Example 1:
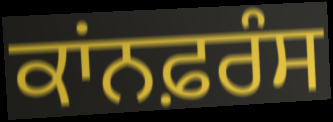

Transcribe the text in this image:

ਕਾਂਨਫ਼ਰੰਸ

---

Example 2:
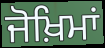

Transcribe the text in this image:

ਜੋਖ਼ਿਮਾਂ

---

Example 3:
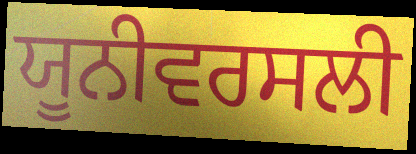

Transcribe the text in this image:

ਯੂਨੀਵਰਸਲੀ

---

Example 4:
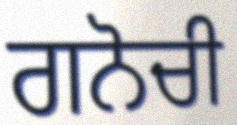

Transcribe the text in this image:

ਗਨੋਚੀ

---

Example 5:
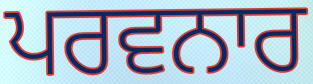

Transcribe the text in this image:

ਪਰਵਨਾਰ